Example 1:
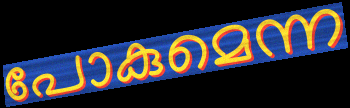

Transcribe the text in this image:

പോകുമെന്ന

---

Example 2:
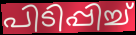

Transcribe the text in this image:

പിടിപ്പിച്ച്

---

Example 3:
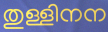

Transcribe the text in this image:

തുള്ളിനന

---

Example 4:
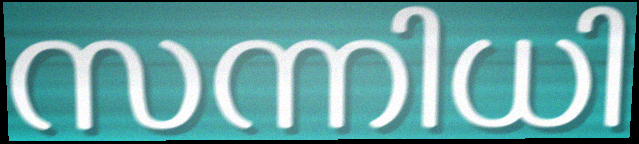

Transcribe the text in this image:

സന്നിധി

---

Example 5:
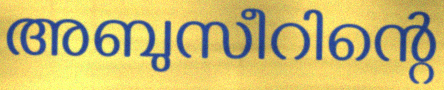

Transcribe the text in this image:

അബുസീറിന്റെ